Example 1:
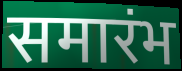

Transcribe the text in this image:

समारंभ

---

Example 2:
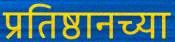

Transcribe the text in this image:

प्रतिष्ठानच्या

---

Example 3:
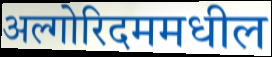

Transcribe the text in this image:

अल्गोरिदममधील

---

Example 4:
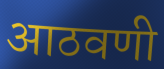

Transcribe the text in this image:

आठवणी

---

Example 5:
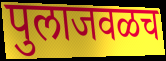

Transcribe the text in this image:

पुलाजवळच